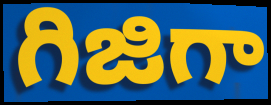
గిజిగా